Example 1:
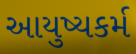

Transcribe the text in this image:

આયુષ્યકર્મ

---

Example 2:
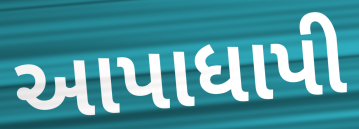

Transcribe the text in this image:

આપાધાપી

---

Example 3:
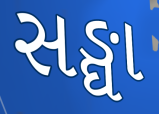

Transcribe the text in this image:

સઙ્ઘા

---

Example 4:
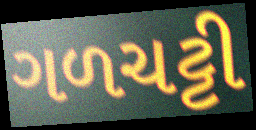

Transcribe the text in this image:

ગળચટ્ટી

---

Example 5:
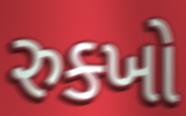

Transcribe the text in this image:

રુક્ખો